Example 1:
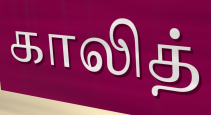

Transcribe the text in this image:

காலித்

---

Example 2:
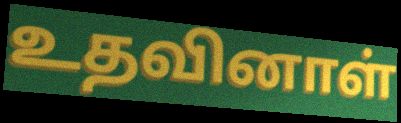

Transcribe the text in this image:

உதவினாள்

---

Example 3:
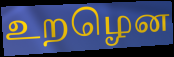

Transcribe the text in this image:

உறழென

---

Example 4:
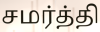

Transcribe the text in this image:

சமர்த்தி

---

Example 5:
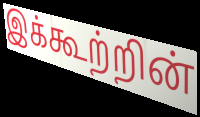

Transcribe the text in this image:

இக்கூற்றின்